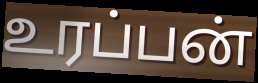
உரப்பன்